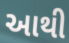
આથી